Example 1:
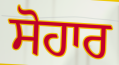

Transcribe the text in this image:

ਸੋਹਾਰ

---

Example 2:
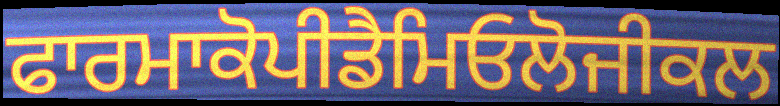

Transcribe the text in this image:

ਫਾਰਮਾਕੋਪੀਡੈਮਿਓਲੋਜੀਕਲ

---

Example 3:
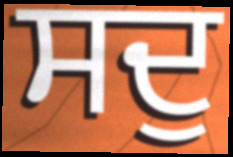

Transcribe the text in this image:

ਸਦੁ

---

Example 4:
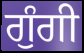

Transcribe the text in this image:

ਗੁੰਗੀ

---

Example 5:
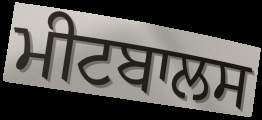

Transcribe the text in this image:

ਮੀਟਬਾਲਸ